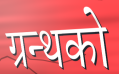
ग्रन्थको